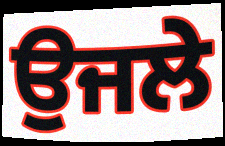
ਉਜਲੇ